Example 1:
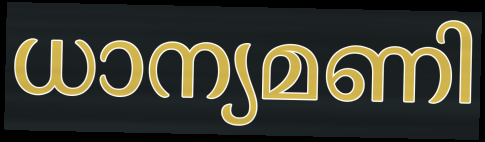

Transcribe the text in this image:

ധാന്യമണി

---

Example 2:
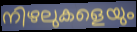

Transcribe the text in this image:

നിഴലുകളെയും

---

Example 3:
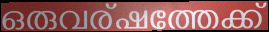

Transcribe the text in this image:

ഒരുവര്ഷത്തേക്ക്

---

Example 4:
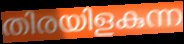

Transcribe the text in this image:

തിരയിളകുന്ന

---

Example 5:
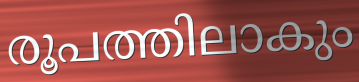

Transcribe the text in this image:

രൂപത്തിലാകും